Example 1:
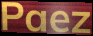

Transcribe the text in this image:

Paez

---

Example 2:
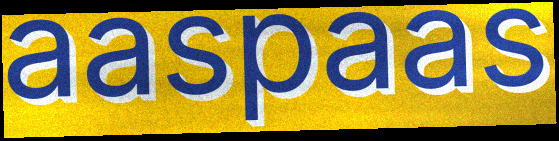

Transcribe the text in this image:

aaspaas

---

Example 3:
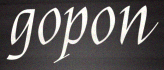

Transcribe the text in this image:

gopon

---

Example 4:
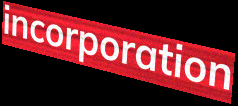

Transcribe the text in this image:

incorporation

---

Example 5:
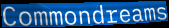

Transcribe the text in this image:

Commondreams